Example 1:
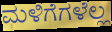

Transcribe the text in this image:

ಮಳಿಗೆಗಳೆಲ್ಲ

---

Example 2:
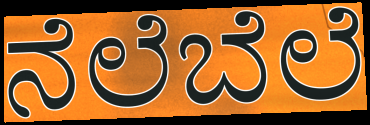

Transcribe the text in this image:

ನೆಲೆಬೆಲೆ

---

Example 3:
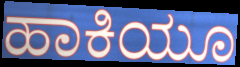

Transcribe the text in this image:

ಹಾಕಿಯೂ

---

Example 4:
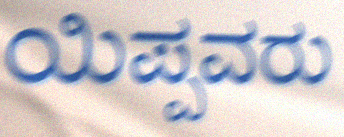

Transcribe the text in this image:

ಯಿಪ್ಪವರು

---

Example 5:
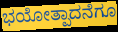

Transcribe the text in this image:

ಭಯೋತ್ಪಾದನೆಗೂ